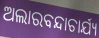
ଅଲାରବନ୍ଦାଚାର୍ଯ୍ୟ